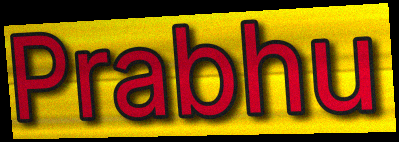
Prabhu